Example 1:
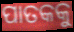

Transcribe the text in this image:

ପାତକକୁ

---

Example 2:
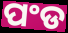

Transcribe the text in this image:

ପଂଡ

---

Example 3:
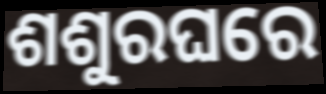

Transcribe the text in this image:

ଶଶୁରଘରେ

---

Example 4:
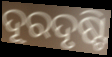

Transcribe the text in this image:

ଦୂରଦୃଷ୍ଟି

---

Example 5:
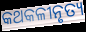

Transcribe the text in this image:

କଥକଳୀନୃତ୍ୟ